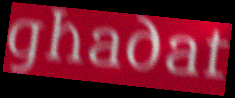
ghadat